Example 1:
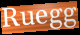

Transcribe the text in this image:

Ruegg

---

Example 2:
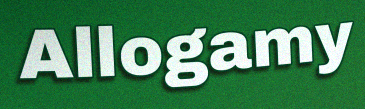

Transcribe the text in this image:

Allogamy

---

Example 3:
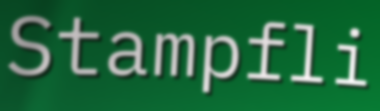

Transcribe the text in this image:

Stampfli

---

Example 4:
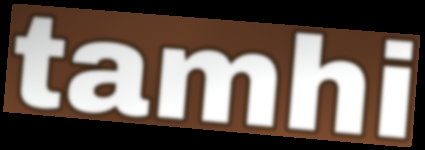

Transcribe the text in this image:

tamhi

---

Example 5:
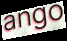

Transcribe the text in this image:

ango